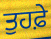
ਤੁਹਫ਼ੇ